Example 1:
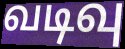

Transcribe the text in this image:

வடிவு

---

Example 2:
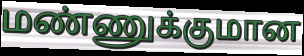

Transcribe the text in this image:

மண்ணுக்குமான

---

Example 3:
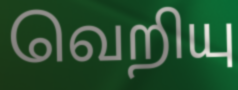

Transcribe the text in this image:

வெறியு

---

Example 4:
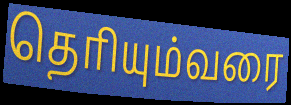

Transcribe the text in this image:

தெரியும்வரை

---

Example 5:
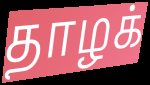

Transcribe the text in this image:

தாழக்